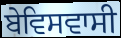
ਬੇਵਿਸਵਾਸੀ